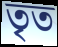
তৃত